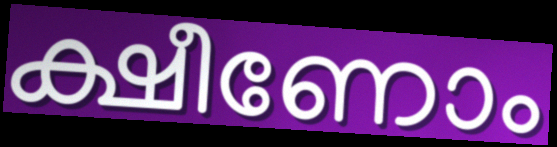
ക്ഷീണോം